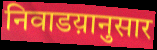
निवाडय़ानुसार